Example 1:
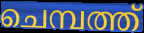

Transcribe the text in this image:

ചെമ്പത്ത്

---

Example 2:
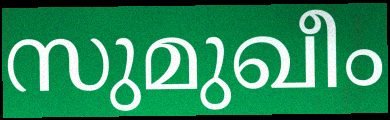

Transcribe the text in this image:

സുമുഖീം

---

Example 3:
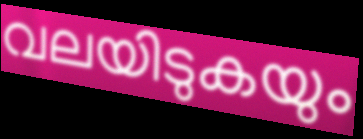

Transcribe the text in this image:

വലയിടുകയും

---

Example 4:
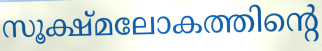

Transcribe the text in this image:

സൂക്ഷ്മലോകത്തിന്റെ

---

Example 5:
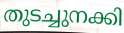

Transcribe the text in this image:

തുടച്ചുനക്കി